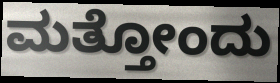
ಮತ್ತೋಂದು